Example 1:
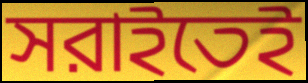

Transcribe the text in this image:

সরাইতেই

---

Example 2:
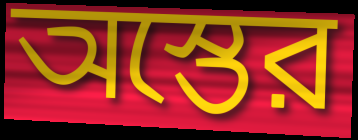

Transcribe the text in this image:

অস্তের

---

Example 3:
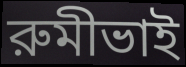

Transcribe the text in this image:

রুমীভাই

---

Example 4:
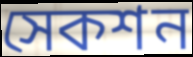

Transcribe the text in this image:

সেকশন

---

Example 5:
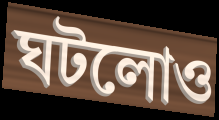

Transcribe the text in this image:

ঘটলোও